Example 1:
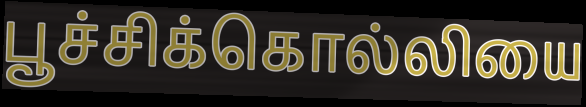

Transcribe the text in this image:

பூச்சிக்கொல்லியை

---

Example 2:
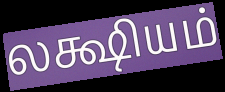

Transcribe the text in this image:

லக்ஷியம்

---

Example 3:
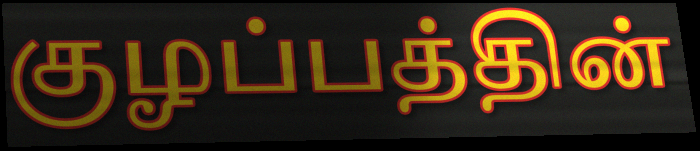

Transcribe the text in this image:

குழப்பத்தின்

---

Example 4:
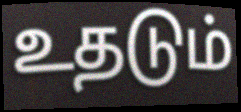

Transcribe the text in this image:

உதடும்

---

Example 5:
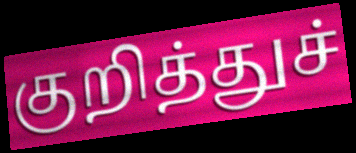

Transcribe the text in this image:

குறித்துச்